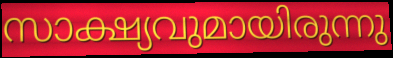
സാക്ഷ്യവുമായിരുന്നു